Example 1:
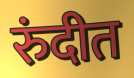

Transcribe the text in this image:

रुंदीत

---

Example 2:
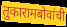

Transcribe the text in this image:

तुकारामबोवांची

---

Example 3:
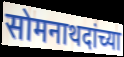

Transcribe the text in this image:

सोमनाथदांच्या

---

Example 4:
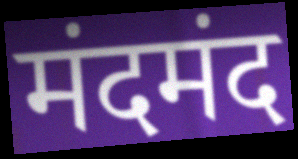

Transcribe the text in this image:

मंदमंद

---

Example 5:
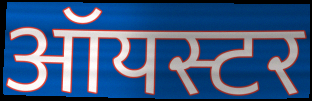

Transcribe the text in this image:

ऑयस्टर